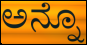
ಅನ್ನೊ